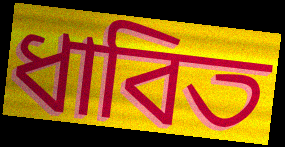
ধাবিত